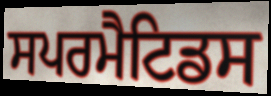
ਸਪਰਮੈਟਿਡਸ